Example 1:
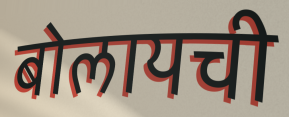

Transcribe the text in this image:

बोलायची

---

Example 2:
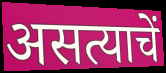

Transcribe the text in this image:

असत्याचें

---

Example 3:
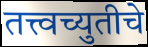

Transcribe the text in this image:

तत्त्वच्युतीचे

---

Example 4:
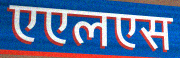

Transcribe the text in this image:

एएलएस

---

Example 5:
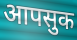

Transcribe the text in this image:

आपसुक